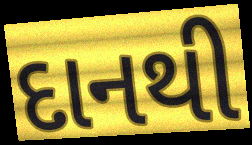
દાનથી